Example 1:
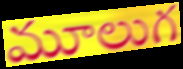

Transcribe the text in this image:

మూలుగ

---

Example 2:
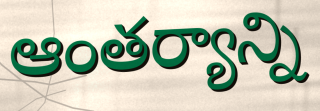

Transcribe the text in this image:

ఆంతర్యాన్ని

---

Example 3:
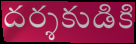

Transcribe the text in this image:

దర్శకుడికి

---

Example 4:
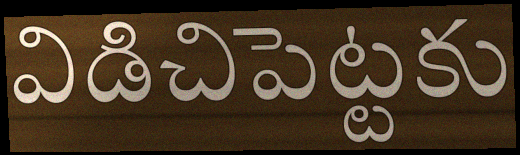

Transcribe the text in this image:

విడిచిపెట్టకు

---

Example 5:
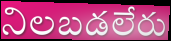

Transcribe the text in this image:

నిలబడలేరు